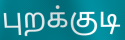
புறக்குடி